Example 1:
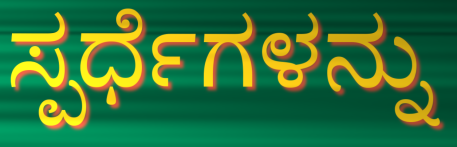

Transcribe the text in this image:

ಸ್ಪರ್ಧೆಗಳನ್ನು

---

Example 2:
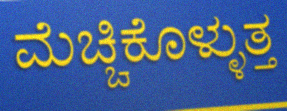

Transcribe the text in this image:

ಮೆಚ್ಚಿಕೊಳ್ಳುತ್ತ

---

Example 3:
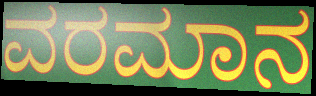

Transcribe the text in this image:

ವರಮಾನ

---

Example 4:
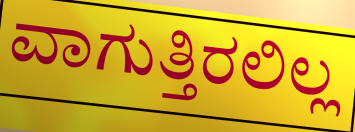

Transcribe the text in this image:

ವಾಗುತ್ತಿರಲಿಲ್ಲ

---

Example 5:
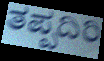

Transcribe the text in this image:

ತಪ್ಪದಿರಿ